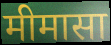
मीमासा